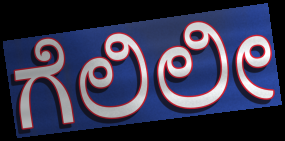
ಗೆಲಿಲೀ